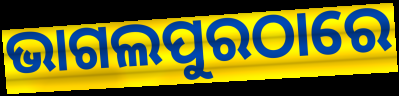
ଭାଗଲପୁରଠାରେ